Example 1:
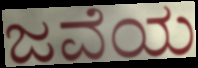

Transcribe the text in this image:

ಜವೆಯ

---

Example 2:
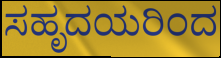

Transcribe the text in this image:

ಸಹೃದಯರಿಂದ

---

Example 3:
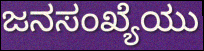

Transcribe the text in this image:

ಜನಸಂಖ್ಯೆಯು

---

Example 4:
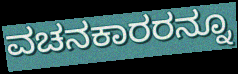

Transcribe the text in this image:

ವಚನಕಾರರನ್ನೂ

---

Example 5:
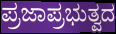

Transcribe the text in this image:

ಪ್ರಜಾಪ್ರಭುತ್ವದ